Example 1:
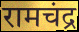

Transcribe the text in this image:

रामचंद्र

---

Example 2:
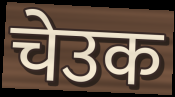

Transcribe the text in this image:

चेउक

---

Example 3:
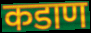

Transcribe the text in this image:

कडाण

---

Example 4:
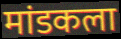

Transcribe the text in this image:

मांडकला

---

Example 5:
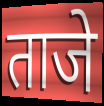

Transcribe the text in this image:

ताजे